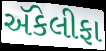
ઍકેલીફા